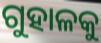
ଗୁହାଳକୁ